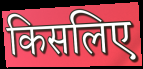
किसलिए